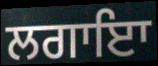
ਲਗਾਇਾ